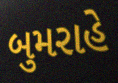
બુમરાહે